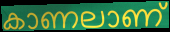
കാണലാണ്